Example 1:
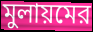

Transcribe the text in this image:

মুলায়মের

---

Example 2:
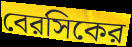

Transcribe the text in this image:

বেরসিকের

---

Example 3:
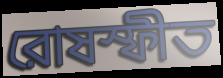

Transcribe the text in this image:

রোষস্ফীত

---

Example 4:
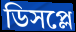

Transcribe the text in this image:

ডিসপ্লে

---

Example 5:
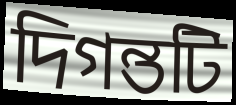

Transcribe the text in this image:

দিগন্তটি